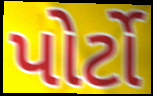
પોર્ટો